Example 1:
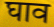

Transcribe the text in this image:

घाव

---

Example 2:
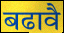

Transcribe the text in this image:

बढावै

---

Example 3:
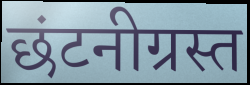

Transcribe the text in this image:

छंटनीग्रस्त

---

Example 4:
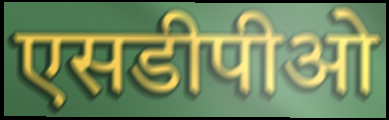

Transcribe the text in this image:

एसडीपीओ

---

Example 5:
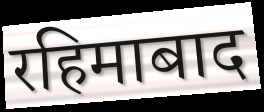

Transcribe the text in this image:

रहिमाबाद